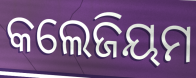
କଲେଜିୟମ